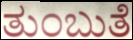
ತುಂಬುತೆ